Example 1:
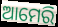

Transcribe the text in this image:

ଆମେରି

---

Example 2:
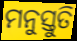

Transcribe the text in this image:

ମନୁସ୍ତୁତି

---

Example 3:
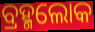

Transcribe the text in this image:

ବ୍ରହ୍ମଲୋକ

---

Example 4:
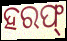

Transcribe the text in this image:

ହରଫ୍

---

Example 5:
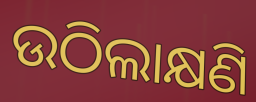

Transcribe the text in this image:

ଉଠିଲାକ୍ଷଣି